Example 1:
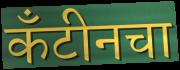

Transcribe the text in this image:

कँटीनचा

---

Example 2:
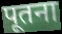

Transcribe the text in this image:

पूतना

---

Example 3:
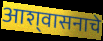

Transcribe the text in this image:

आश्वासनाचे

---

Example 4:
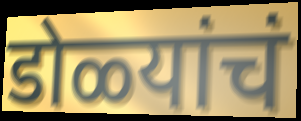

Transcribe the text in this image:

डोळ्यांचं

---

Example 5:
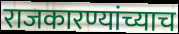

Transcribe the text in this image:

राजकारण्यांच्याच